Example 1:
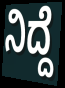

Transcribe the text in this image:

ನಿದ್ದೆ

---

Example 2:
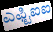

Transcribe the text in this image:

ಎಫ್ಟಿಐಐ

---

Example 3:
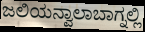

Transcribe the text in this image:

ಜಲಿಯನ್ವಾಲಾಬಾಗ್ನಲ್ಲಿ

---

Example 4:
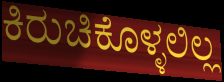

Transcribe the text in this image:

ಕಿರುಚಿಕೊಳ್ಳಲಿಲ್ಲ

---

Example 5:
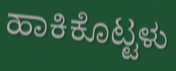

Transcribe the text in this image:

ಹಾಕಿಕೊಟ್ಟಳು